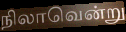
நிலாவென்று